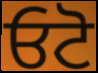
ਓਟੋ